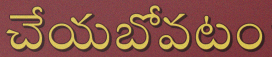
చేయబోవటం